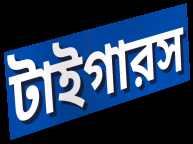
টাইগারস